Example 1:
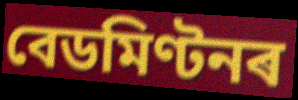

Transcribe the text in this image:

বেডমিণ্টনৰ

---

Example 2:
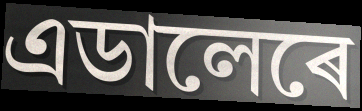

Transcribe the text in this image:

এডালেৰে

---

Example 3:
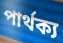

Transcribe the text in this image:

পাৰ্থক্য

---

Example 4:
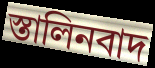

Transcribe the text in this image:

স্তালিনবাদ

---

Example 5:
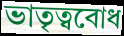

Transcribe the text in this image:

ভাতৃত্ববোধ